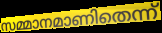
സമ്മാനമാണിതെന്ന്